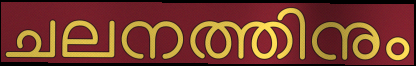
ചലനത്തിനും